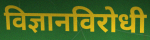
विज्ञानविरोधी